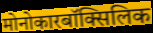
मोनोकारबॉक्सिलिक